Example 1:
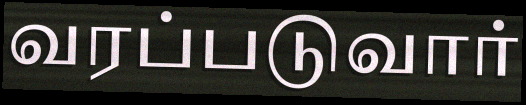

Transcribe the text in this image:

வரப்படுவார்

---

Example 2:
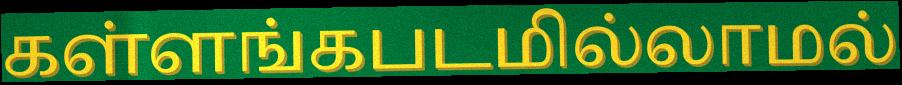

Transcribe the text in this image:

கள்ளங்கபடமில்லாமல்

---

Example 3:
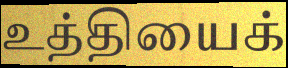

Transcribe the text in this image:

உத்தியைக்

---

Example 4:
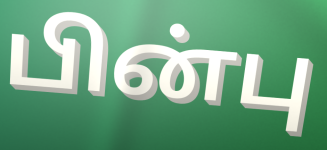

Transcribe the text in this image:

பின்பு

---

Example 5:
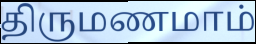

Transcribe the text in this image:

திருமணமாம்